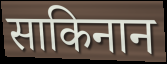
साकिनान